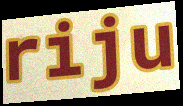
riju